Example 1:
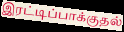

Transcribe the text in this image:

இரட்டிப்பாக்குதல்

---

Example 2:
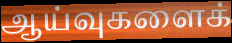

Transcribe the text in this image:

ஆய்வுகளைக்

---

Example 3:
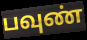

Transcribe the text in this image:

பவுண்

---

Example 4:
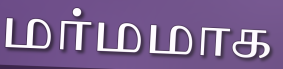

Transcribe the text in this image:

மர்மமாக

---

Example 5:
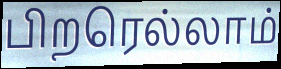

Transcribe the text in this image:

பிறரெல்லாம்